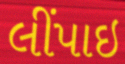
લીંપાઇ